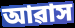
আৱাস